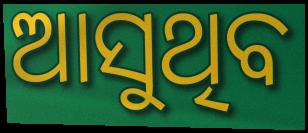
ଆସୁଥିବ